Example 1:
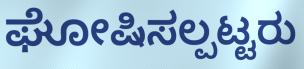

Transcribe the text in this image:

ಘೋಷಿಸಲ್ಪಟ್ಟರು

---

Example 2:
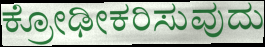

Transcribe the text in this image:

ಕ್ರೋಢೀಕರಿಸುವುದು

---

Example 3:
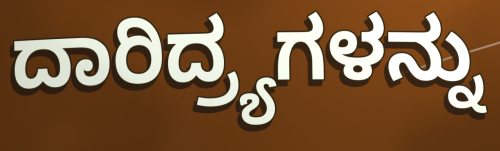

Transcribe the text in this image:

ದಾರಿದ್ರ್ಯಗಳನ್ನು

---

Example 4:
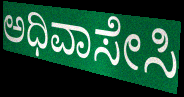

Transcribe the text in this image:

ಅಧಿವಾಸೇಸಿ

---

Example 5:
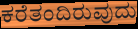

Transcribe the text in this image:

ಕರೆತಂದಿರುವುದು